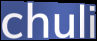
chuli